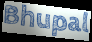
Bhupal